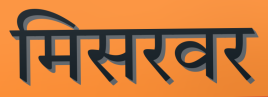
मिसरवर